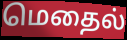
மெதைல்